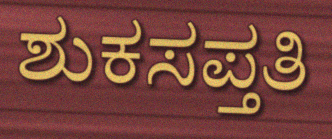
ಶುಕಸಪ್ತತಿ